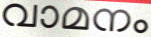
വാമനം